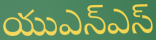
యుఎన్ఎస్